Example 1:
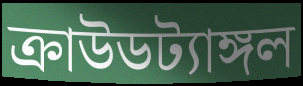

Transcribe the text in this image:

ক্রাউডট্যাঙ্গল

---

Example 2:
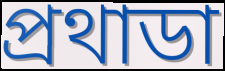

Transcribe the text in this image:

প্রথাডা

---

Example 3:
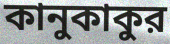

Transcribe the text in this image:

কানুকাকুর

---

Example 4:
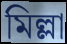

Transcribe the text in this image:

মিল্লা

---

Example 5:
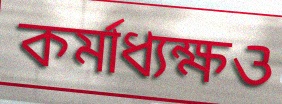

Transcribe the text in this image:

কর্মাধ্যক্ষও